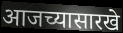
आजच्यासारखे